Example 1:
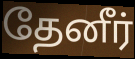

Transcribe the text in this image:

தேனீர்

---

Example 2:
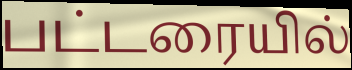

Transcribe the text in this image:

பட்டரையில்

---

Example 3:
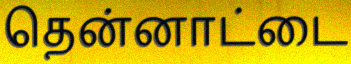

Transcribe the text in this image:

தென்னாட்டை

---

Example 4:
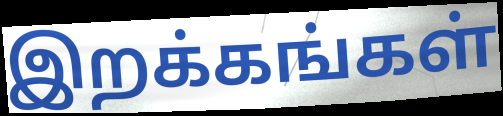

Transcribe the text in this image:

இறக்கங்கள்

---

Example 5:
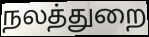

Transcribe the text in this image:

நலத்துறை